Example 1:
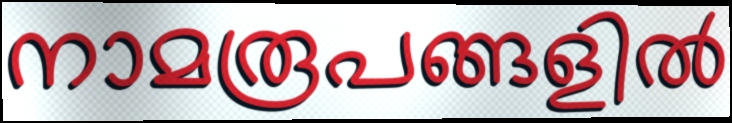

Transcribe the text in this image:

നാമരൂപങ്ങളിൽ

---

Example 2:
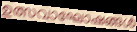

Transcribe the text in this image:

ഉത്സവാഘോഷങ്ങൾ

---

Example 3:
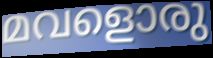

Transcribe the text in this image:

മവളൊരു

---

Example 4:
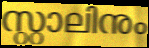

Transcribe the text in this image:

സ്റ്റാലിനും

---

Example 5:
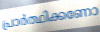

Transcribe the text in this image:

പ്രാർത്ഥിക്കണോ